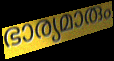
ഭാര്യമാരും